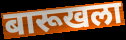
बारूखला